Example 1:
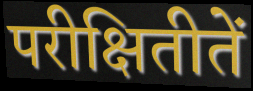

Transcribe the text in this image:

परीक्षितीतें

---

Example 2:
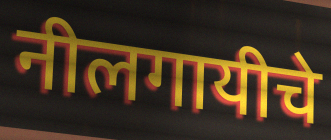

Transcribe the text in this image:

नीलगायीचे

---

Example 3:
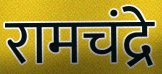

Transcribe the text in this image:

रामचंद्रे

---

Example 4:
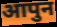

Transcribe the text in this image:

आपुन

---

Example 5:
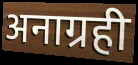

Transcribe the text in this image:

अनाग्रही